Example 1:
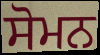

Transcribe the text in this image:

ਸੋਮਨ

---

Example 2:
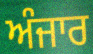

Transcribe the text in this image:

ਅੰਜਾਰ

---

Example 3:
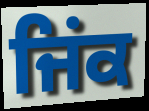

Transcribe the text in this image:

ਜਿਂਕ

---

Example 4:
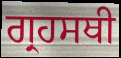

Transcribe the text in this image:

ਗ੍ਰਹਸਥੀ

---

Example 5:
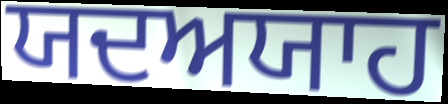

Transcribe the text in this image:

ਯਦਅਯਾਹ